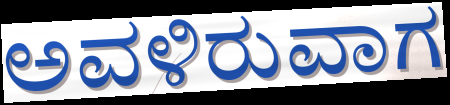
ಅವಳಿರುವಾಗ